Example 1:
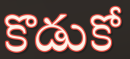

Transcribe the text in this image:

కొడుకో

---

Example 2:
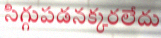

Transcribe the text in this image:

సిగ్గుపడనక్కరలేదు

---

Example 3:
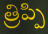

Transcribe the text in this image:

త్రిప్పి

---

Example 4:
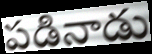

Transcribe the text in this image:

పడినాడు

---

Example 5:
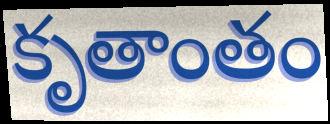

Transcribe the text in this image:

కృతాంతం